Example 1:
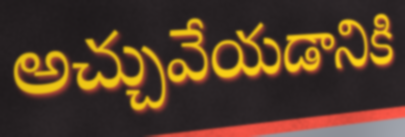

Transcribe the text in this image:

అచ్చువేయడానికి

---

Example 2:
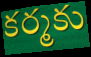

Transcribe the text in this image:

కర్మకు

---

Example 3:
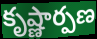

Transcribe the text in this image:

కృష్ణార్పణ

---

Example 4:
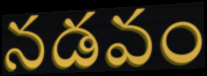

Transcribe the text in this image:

నడవం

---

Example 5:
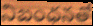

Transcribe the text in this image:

నిబంధనతో